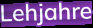
Lehjahre